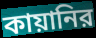
কায়ানির